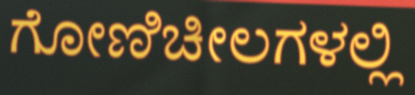
ಗೋಣಿಚೀಲಗಳಲ್ಲಿ